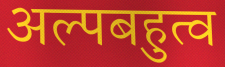
अल्पबहुत्व